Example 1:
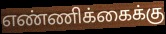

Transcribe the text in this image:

எண்ணிக்கைக்கு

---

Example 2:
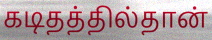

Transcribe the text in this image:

கடிதத்தில்தான்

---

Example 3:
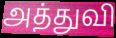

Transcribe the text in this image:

அத்துவி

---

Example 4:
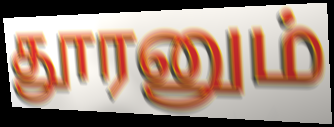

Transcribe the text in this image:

தூரனும்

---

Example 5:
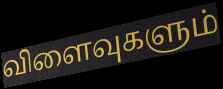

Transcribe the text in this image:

விளைவுகளும்